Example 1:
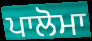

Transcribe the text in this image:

ਪਾਲੋਮਾ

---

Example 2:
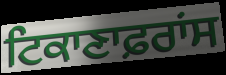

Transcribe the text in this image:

ਟਿਕਾਣਾਫ਼ਰਾਂਸ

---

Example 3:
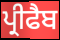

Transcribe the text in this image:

ਪ੍ਰੀਫੈਬ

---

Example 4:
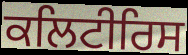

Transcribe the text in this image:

ਕਲਿਟੀਰਿਸ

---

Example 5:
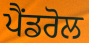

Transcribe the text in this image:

ਪੈਂਡਰੋਲ